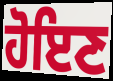
ਹੋਇਣ